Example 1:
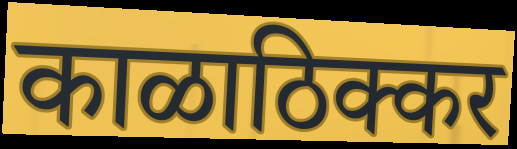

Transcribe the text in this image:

काळाठिक्कर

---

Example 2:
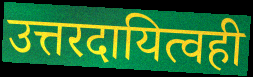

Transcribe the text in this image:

उत्तरदायित्वही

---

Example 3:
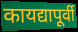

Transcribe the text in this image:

कायद्यापूर्वी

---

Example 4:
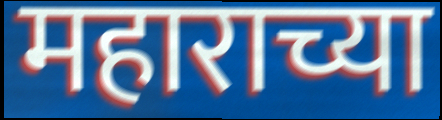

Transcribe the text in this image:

महाराच्या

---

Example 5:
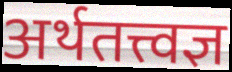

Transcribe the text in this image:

अर्थतत्त्वज्ञ